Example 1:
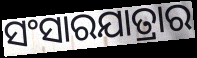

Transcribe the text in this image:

ସଂସାରଯାତ୍ରାର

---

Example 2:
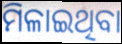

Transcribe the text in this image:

ମିଳାଇଥିବା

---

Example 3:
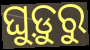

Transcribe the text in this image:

ଘୁଡ଼ୁରୁ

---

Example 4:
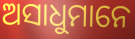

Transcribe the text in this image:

ଅସାଧୁମାନେ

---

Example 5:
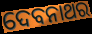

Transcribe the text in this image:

ଦେବନାଥର